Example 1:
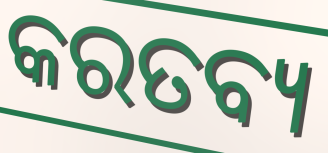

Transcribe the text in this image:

କରତବ୍ୟ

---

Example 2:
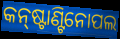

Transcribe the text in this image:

କନ୍‌ଷ୍ଟାଣ୍ଟିନୋପଲ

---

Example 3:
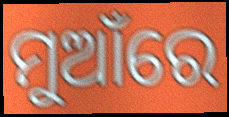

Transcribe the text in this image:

ମୁଆଁରେ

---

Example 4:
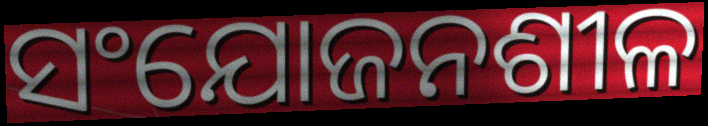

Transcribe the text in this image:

ସଂଯୋଜନଶୀଳ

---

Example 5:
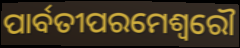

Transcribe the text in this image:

ପାର୍ବତୀପରମେଶ୍ଵରୌ